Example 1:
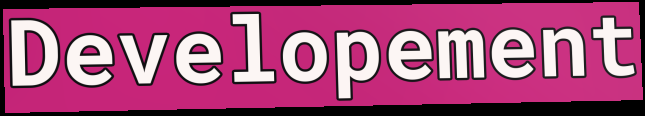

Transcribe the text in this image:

Developement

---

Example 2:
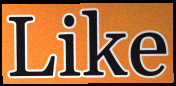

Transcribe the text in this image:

Like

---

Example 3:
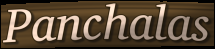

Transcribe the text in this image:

Panchalas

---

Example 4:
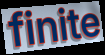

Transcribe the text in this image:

finite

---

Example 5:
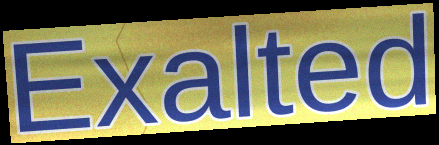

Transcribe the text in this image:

Exalted